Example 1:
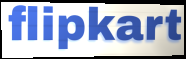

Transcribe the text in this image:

flipkart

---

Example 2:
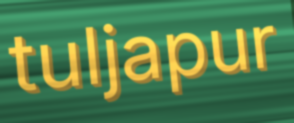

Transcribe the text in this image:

tuljapur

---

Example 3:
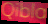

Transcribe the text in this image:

Qibla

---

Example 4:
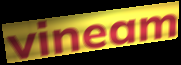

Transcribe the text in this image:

vineam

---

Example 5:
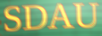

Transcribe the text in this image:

SDAU